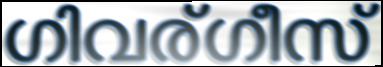
ഗിവര്ഗീസ്